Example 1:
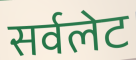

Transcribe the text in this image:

सर्वलेट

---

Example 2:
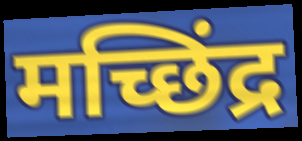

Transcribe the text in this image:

मच्छिंद्र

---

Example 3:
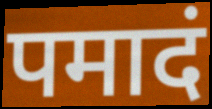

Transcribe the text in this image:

पमादं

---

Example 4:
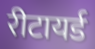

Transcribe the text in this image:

रीटायर्ड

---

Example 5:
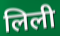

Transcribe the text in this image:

लिली